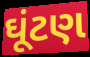
ઘૂંટણ